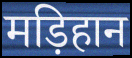
मड़िहान